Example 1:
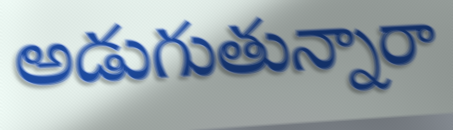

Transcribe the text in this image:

అడుగుతున్నారా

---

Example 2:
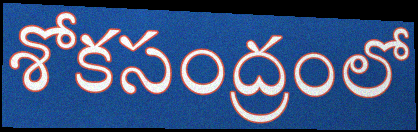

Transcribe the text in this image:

శోకసంద్రంలో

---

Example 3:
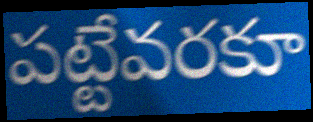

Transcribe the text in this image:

పట్టేవరకూ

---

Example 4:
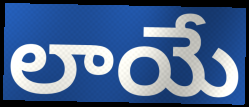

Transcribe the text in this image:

లాయే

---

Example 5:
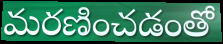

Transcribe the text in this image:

మరణించడంతో